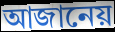
আজানেয়